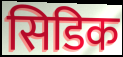
सिडिक